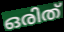
ഒരിത്